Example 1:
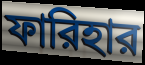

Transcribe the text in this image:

ফারিহার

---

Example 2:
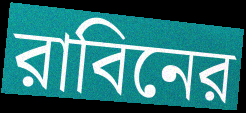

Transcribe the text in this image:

রাবিনের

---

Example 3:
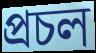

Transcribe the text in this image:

প্রচল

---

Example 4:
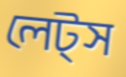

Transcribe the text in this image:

লেট্‌স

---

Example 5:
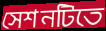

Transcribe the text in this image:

সেশনটিতে